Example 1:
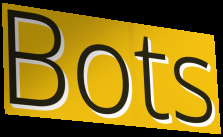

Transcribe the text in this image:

Bots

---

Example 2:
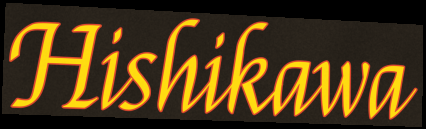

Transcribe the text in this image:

Hishikawa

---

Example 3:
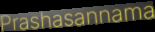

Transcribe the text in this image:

Prashasannama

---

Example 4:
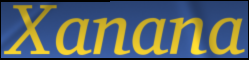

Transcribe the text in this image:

Xanana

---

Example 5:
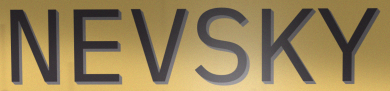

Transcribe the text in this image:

NEVSKY